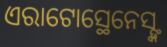
ଏରାଟୋସ୍ଥେନେସ୍ଙ୍କ